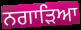
ਨਗਾੜਿਆ